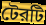
টেরটি